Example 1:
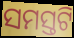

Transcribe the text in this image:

ସମସ୍ତଟି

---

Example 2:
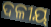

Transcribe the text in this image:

ଦଳୀୟ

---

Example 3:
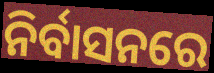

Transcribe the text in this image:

ନିର୍ବାସନରେ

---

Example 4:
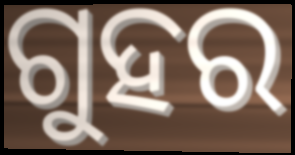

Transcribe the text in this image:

ଗୁହର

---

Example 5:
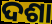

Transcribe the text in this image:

ଦଶା